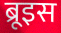
ब्रूइस